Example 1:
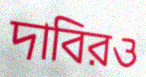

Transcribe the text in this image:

দাবিরও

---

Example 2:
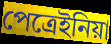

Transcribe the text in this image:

পেত্রেইনিয়া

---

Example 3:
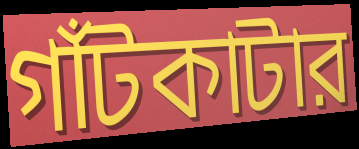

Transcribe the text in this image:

গাঁটকাটার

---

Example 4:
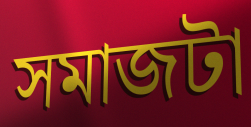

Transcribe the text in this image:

সমাজটা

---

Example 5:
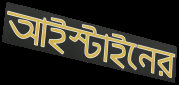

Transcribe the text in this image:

আইস্টাইনের